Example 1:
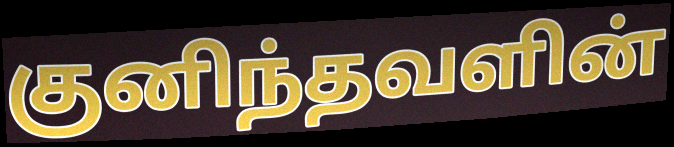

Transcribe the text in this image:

குனிந்தவளின்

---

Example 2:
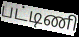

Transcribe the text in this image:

பட்டிணி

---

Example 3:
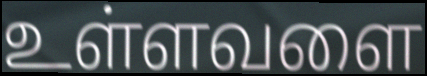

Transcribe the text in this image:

உள்ளவளை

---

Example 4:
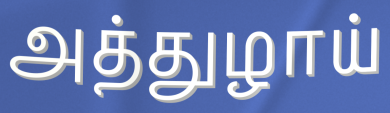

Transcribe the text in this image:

அத்துழாய்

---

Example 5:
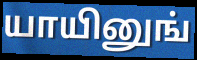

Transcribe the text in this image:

யாயினுங்